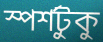
স্পর্শটুকু